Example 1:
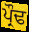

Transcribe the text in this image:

ਪ੍ਰੌਢ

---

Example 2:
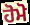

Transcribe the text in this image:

ਹੋਮੋ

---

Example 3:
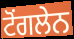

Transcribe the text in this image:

ਟੋਂਗਲੇਨ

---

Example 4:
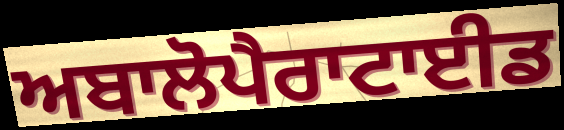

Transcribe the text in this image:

ਅਬਾਲੋਪੈਰਾਟਾਈਡ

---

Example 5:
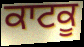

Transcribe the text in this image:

ਕਾਟਕੂ